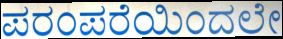
ಪರಂಪರೆಯಿಂದಲೇ